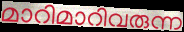
മാറിമാറിവരുന്ന